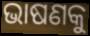
ଭାଷଣକୁ